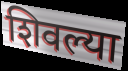
शिवल्या